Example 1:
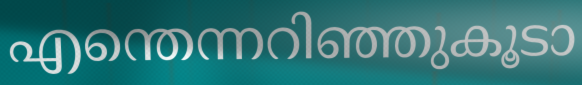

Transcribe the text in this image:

എന്തെന്നറിഞ്ഞുകൂടാ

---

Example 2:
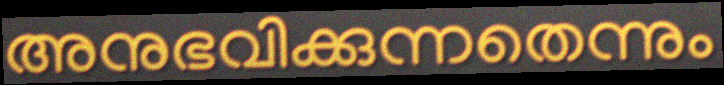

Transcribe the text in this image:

അനുഭവിക്കുന്നതെന്നും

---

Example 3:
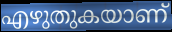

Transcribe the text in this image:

എഴുതുകയാണ്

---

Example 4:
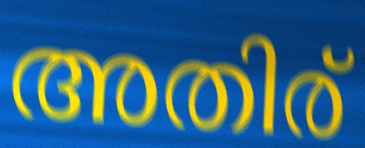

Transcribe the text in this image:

അതിര്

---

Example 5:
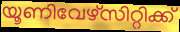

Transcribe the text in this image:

യൂണിവേഴ്സിറ്റിക്ക്